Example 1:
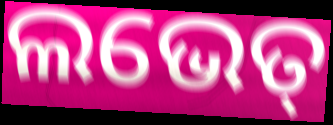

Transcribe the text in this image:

ଲଭେତ୍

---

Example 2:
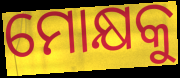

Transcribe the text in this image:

ମୋକ୍ଷକୁ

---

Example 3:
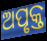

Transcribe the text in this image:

ଅପୃକ୍ତ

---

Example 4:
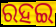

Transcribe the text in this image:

ରହଇ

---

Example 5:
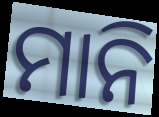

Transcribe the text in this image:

ମାନି